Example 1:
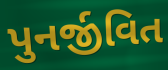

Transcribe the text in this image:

પુનર્જીવિત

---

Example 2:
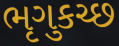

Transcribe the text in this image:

ભૃગુકચ્છ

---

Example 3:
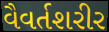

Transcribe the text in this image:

વૈવર્તશરીર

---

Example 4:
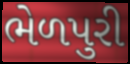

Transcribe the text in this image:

ભેળપુરી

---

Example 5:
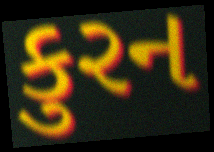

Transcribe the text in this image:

કુરન